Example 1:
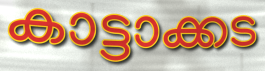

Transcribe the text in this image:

കാട്ടാക്കട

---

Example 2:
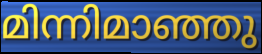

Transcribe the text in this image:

മിന്നിമാഞ്ഞു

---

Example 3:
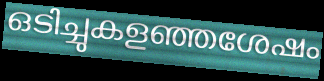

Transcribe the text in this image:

ഒടിച്ചുകളഞ്ഞശേഷം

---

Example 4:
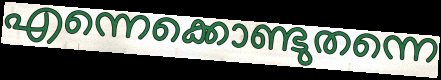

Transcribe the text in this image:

എന്നെക്കൊണ്ടുതന്നെ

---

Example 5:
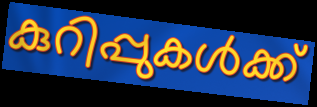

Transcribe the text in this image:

കുറിപ്പുകൾക്ക്